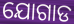
ଯୋଗାଡ